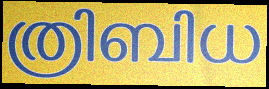
ത്രിബിധ